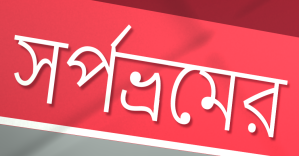
সর্পভ্রমের